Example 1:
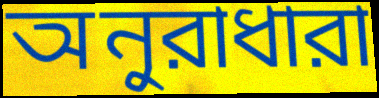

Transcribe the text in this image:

অনুরাধারা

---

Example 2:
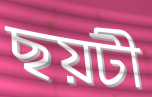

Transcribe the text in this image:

ছয়টী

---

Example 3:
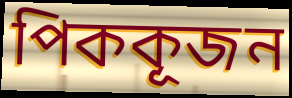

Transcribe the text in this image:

পিককূজন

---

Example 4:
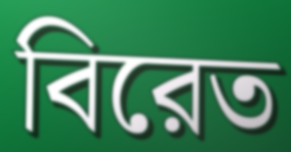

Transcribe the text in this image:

বিরেত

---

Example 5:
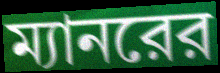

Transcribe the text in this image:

ম্যানরের